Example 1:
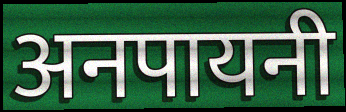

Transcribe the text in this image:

अनपायनी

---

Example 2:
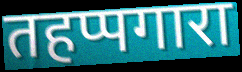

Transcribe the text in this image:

तहप्पगारा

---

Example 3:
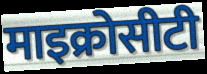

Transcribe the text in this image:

माइक्रोसीटी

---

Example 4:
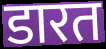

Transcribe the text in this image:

डारत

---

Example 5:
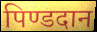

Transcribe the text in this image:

पिण्डदान